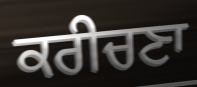
ਕਰੀਚਣਾ